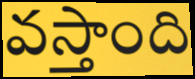
వస్తాంది